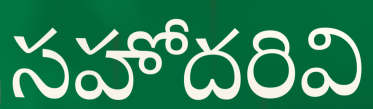
సహోదరివి